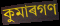
কুমাৰগণ